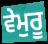
ਵੇਮੁਰੂ